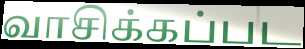
வாசிக்கப்பட